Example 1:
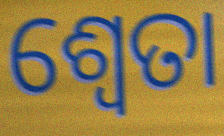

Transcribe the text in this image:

ଶ୍ୱେତା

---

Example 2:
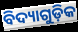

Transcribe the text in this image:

ବିଦ୍ୟାଗୁଡ଼ିକ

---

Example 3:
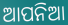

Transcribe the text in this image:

ଆପନିଆ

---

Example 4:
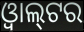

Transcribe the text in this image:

ଓ୍ୱାଲ୍‍ଟର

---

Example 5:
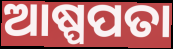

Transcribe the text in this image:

ଆଷ୍ପପତା